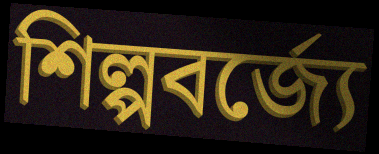
শিল্পবর্জ্যে